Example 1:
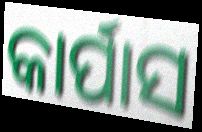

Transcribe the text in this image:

କାର୍ପାସ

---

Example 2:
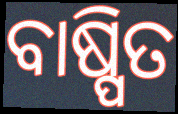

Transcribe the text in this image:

ବାଷ୍ପିତ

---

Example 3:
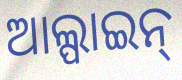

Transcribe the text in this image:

ଆଲ୍ପାଇନ୍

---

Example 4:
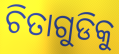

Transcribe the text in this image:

ଚିତାଗୁଡିକୁ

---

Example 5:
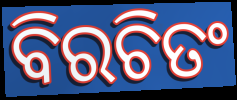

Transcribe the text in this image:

ବିରଚିତଂ